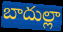
బాదుల్లా